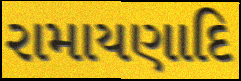
રામાયણાદિ